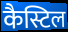
कैस्टिल